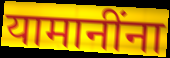
यामानींना